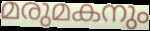
മരുമകനും